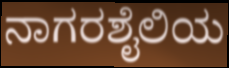
ನಾಗರಶೈಲಿಯ